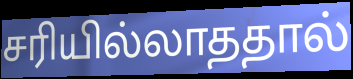
சரியில்லாததால்